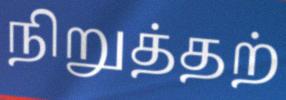
நிறுத்தற்